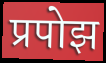
प्रपोझ